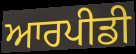
ਆਰਪੀਡੀ